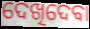
ଦେଖିଦେବା